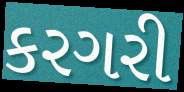
કરગરી